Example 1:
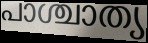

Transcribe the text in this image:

പാശ്ചാത്യ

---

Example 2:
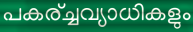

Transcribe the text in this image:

പകര്ച്ചവ്യാധികളും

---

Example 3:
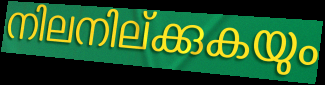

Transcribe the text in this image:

നിലനില്ക്കുകയും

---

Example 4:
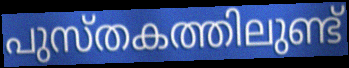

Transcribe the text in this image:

പുസ്തകത്തിലുണ്ട്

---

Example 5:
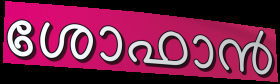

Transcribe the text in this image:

ശോഫാൻ